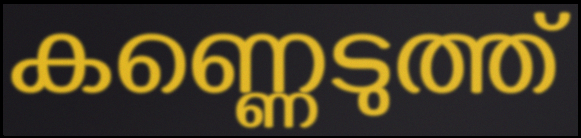
കണ്ണെടുത്ത്